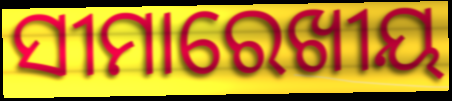
ସୀମାରେଖୀୟ